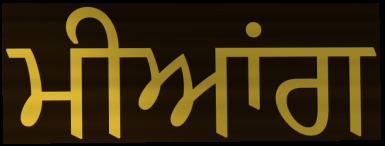
ਮੀਆਂਗ